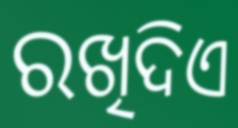
ରଖିଦିଏ